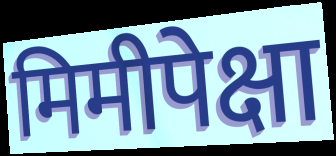
मिमीपेक्षा